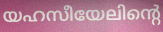
യഹസീയേലിന്റെ